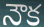
నౌక